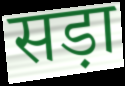
सड़ा